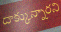
దాక్కున్నారని